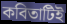
কবিতাটিই